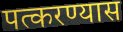
पत्करण्यास